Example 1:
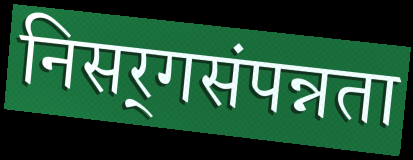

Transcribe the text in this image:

निसर्गसंपन्नता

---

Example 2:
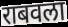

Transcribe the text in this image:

राबवला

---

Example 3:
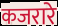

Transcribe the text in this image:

कजरारे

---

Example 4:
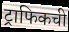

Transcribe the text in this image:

ट्राफिकची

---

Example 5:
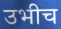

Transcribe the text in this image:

उभीच